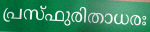
പ്രസ്ഫുരിതാധരഃ